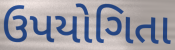
ઉપયોગિતા